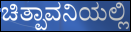
ಚಿತ್ಪಾವನಿಯಲ್ಲಿ